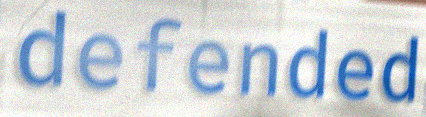
defended